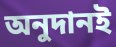
অনুদানই